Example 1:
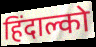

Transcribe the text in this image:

हिंदाल्को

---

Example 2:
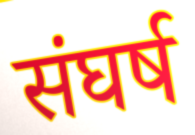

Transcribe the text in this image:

संघर्ष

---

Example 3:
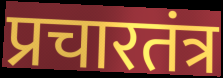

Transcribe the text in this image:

प्रचारतंत्र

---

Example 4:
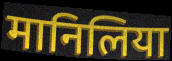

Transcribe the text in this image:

मानिलिया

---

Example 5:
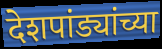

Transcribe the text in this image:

देशपांड्यांच्या